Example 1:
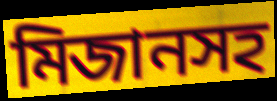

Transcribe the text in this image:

মিজানসহ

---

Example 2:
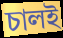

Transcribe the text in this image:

চালই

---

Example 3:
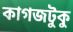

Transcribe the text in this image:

কাগজটুকু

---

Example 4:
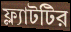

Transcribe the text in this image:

ফ্ল্যাটটির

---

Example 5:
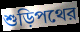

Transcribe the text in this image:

শুড়িপথের